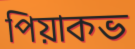
পিয়াকভ